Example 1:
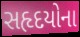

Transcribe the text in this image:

સહૃદયોના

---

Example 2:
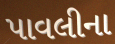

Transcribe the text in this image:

પાવલીના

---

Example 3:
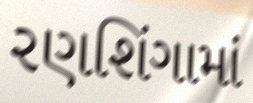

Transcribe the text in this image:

રણશિંગામાં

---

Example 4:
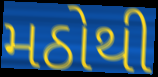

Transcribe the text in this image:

મઠોથી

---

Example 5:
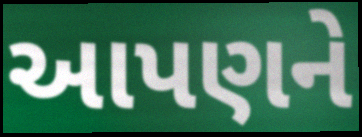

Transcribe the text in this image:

આપણને